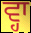
ਵ੍ਹਾ